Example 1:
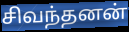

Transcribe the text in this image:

சிவந்தனன்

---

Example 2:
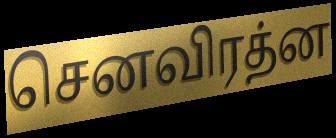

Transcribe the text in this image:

செனவிரத்ன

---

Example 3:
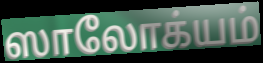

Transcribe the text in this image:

ஸாலோக்யம்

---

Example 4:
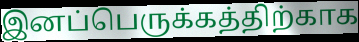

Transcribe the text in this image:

இனப்பெருக்கத்திற்காக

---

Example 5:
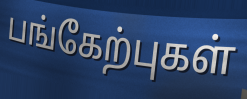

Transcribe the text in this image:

பங்கேற்புகள்